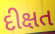
દીક્ષત